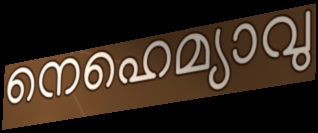
നെഹെമ്യാവു